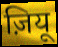
ज़ियू